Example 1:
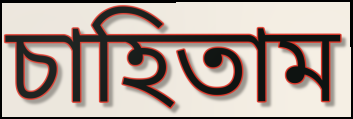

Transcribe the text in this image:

চাহিতাম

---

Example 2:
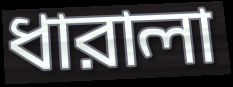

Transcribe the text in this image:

ধারালা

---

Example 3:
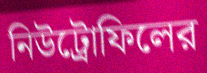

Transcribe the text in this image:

নিউট্রোফিলের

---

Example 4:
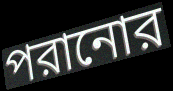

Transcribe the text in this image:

পরানোর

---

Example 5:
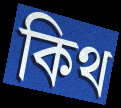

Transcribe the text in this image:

কিথ